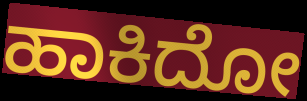
ಹಾಕಿದೋ